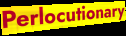
Perlocutionary